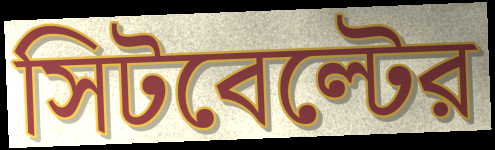
সিটবেল্টের